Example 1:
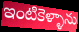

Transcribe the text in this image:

ఇంటికెళ్ళాను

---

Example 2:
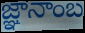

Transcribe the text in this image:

జ్ఞానాంబ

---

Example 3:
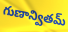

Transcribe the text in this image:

గుణాన్వితమ్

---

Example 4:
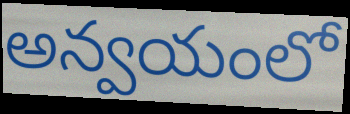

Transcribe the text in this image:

అన్వయంలో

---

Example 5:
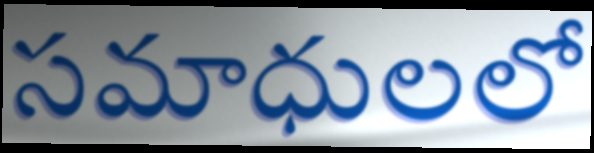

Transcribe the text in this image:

సమాధులలో